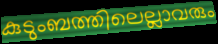
കുടുംബത്തിലെല്ലാവരും